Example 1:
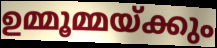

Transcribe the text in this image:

ഉമ്മൂമ്മയ്ക്കും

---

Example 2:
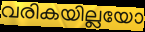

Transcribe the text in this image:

വരികയില്ലയോ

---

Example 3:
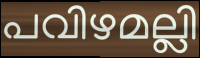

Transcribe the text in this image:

പവിഴമല്ലി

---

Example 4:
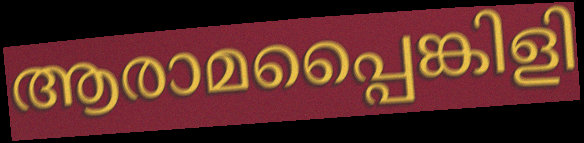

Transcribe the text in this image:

ആരാമപ്പൈങ്കിളി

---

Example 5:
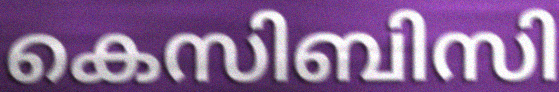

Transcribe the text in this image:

കെസിബിസി